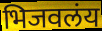
भिजवलंय